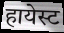
हायेस्ट